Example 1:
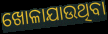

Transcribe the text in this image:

ଖୋଳାଯାଉଥିବା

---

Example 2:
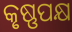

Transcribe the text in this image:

କୃଷ୍ଣପକ୍ଷ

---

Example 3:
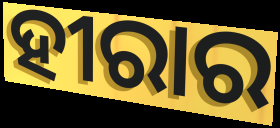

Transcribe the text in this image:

ହୀରାର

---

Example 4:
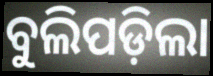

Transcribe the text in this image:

ବୁଲିପଡ଼ିଲା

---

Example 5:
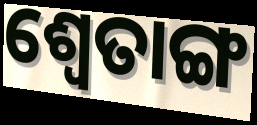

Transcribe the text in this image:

ଶ୍ୱେତାଙ୍ଗ